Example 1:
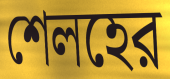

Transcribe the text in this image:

শেলহের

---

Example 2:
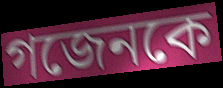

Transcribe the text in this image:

গজেনকে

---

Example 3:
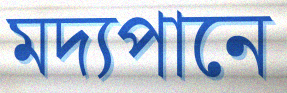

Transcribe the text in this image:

মদ্যপানে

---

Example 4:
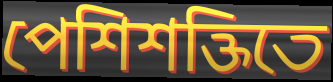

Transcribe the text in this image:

পেশিশক্তিতে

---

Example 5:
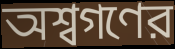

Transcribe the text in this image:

অশ্বগণের